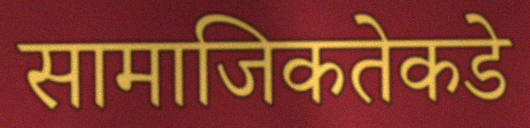
सामाजिकतेकडे